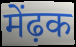
मेंढ़क